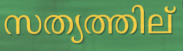
സത്യത്തില്